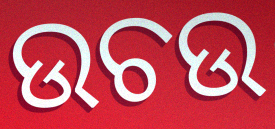
ଉଚଉ